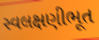
સ્વલક્ષણીભૂત